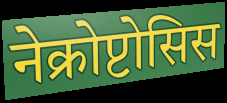
नेक्रोप्टोसिस